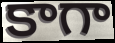
కాగా